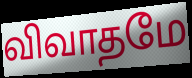
விவாதமே